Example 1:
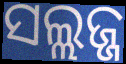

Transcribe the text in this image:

ସଲ୍ଲଜ୍ଜ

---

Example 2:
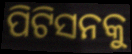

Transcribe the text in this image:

ପିଟିସନକୁ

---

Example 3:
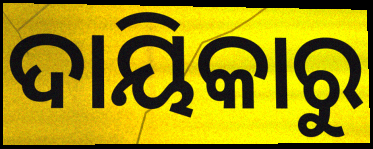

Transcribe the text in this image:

ଦାୟିକାରୁ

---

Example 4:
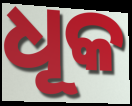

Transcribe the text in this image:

ଧୂକ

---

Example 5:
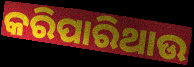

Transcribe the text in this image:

କରିପାରିଥାଉ